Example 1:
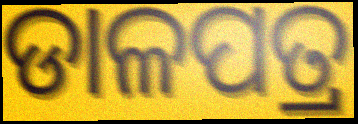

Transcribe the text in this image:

ଡାଳପତ୍ର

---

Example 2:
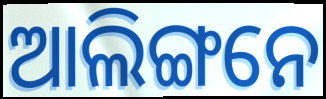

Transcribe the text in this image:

ଆଲିଙ୍ଗନେ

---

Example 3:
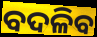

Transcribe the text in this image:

ବଦଳିବ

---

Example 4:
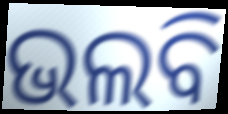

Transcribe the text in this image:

ଭଲବି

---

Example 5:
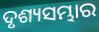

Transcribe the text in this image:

ଦୃଶ୍ୟସମ୍ଭାର